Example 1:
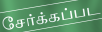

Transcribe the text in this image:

சேர்க்கப்பட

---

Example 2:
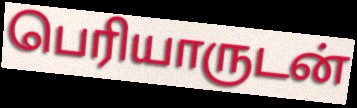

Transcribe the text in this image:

பெரியாருடன்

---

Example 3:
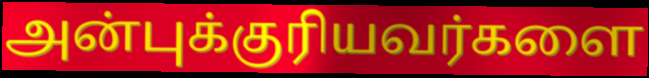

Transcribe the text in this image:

அன்புக்குரியவர்களை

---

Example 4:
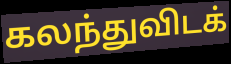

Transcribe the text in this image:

கலந்துவிடக்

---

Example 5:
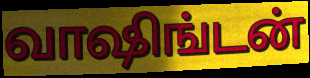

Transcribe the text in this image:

வாஷிங்டன்